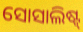
ସୋସାଲିଷ୍ଟ୍